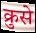
क्रुसे